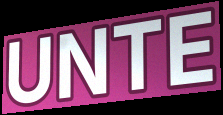
UNTE